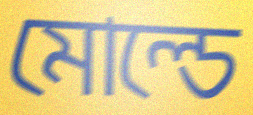
মোল্ডে